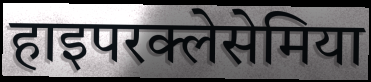
हाइपरक्लेसेमिया